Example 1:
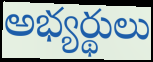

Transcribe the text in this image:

అభ్యర్థులు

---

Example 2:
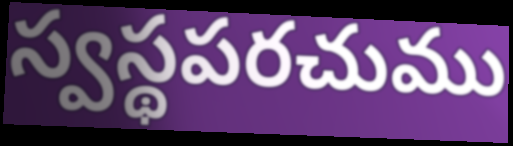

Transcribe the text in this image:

స్వస్థపరచుము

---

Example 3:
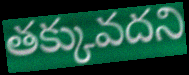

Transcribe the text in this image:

తక్కువదని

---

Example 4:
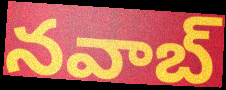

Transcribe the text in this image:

నవాబ్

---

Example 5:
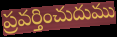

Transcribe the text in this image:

ప్రవర్తించుదుము